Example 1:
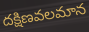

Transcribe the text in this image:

దక్షిణవలమాన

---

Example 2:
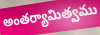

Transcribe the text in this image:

అంతర్యామిత్వము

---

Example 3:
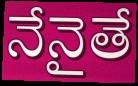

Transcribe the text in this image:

నేనైతే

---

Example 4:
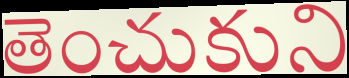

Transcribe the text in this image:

తెంచుకుని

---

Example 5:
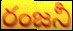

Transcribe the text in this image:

రంజనీ